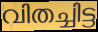
വിതച്ചിട്ട